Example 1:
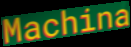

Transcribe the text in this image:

Machina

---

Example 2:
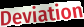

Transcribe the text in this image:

Deviation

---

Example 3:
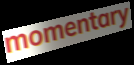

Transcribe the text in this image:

momentary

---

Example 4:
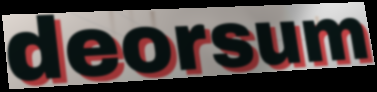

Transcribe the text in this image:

deorsum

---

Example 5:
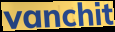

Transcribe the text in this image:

vanchit